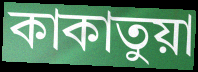
কাকাতুয়া